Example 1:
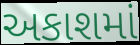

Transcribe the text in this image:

અકાશમાં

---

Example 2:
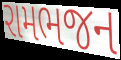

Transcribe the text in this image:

રામભજન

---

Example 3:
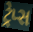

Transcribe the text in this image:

ટ્રેપ્સ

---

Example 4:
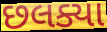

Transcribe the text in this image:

છલક્યા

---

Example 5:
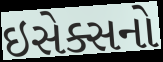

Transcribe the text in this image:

ઇસેક્સનો